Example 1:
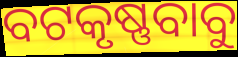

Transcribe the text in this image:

ବଟକୃଷ୍ଣବାବୁ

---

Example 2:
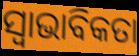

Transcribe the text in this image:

ସ୍ଵାଭାବିକତା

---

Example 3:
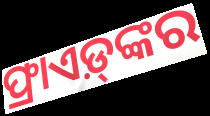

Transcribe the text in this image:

ଫ୍ରାଏଡ଼୍‍ଙ୍କର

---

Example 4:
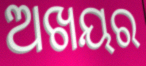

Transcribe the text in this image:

ଅଖୟର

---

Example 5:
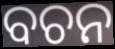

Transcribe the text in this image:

ବଚନ